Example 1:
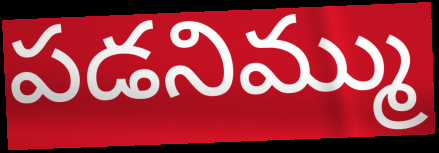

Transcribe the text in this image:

పడనిమ్ము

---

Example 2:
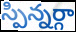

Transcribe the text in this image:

స్పిన్నర్గా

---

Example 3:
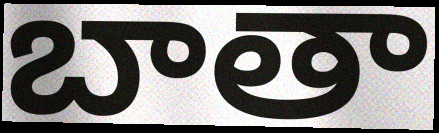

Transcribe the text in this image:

బాతా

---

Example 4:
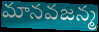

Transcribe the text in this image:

మానవజన్మ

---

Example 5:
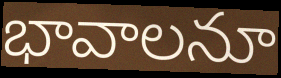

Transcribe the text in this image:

భావాలనూ